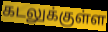
கடலுக்குள்ள